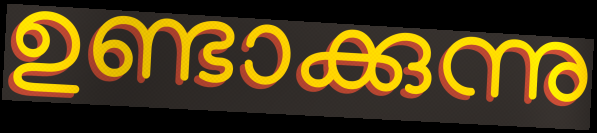
ഉണ്ടാക്കുന്നു